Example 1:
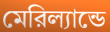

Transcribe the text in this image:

মেরিল্যান্ডে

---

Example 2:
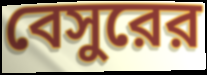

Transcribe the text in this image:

বেসুরের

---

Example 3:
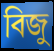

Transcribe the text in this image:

বিজু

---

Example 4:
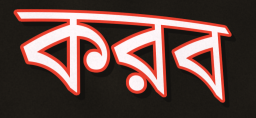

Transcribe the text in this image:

করব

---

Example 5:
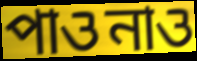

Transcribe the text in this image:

পাওনাও